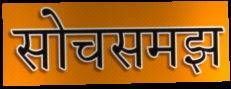
सोचसमझ